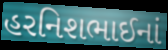
હરનિશભાઈનાં